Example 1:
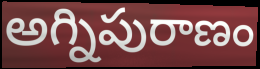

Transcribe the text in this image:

అగ్నిపురాణం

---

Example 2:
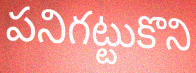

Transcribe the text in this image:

పనిగట్టుకొని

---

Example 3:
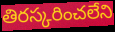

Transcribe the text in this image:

తిరస్కరించలేని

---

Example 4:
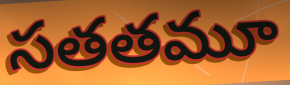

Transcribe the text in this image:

సతతమూ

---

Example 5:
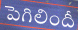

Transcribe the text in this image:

పెగిలిందీ